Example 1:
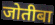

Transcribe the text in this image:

जोतीबा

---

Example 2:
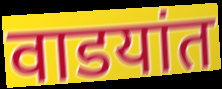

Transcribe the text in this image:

वाडयांत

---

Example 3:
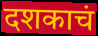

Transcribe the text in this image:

दशकाचं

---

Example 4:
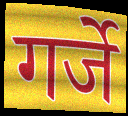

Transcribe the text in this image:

गर्जे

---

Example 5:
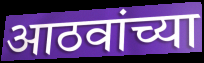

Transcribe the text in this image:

आठवांच्या